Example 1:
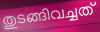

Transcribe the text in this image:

തുടങ്ങിവച്ചത്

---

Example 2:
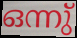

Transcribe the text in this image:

ഒന്നു്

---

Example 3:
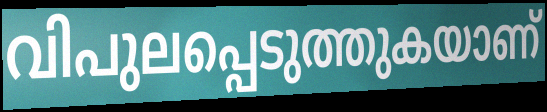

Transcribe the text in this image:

വിപുലപ്പെടുത്തുകയാണ്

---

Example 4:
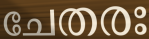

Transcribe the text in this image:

ചേതരഃ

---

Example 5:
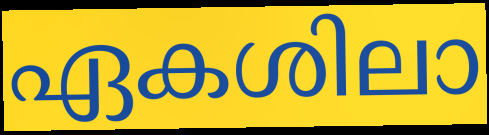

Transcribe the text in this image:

ഏകശിലാ